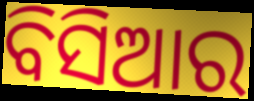
ବିସିଆର